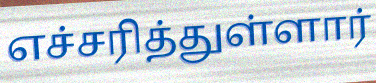
எச்சரித்துள்ளார்